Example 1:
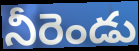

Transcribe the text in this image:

నీరెండు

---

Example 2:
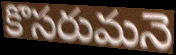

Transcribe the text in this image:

కొసరుమనె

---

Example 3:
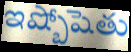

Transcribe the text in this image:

ఇష్బోషెతు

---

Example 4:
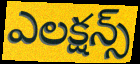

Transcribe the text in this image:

ఎలక్షన్స్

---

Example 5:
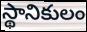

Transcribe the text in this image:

స్థానికులం